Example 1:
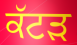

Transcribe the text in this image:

ਕੱਟੜ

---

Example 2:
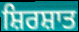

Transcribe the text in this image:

ਸ਼ਿਰਸ਼ਾਤ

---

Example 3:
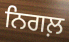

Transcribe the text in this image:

ਨਿਗਲ਼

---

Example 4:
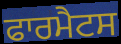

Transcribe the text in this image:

ਫਾਰਮੈਟਸ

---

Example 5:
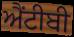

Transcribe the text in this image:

ਐਂਟੀਬੀ